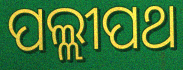
ପଲ୍ଲୀପଥ